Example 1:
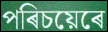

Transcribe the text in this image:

পৰিচয়েৰে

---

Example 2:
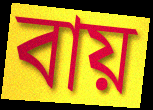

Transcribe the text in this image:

বায়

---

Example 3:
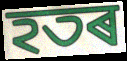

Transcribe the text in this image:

হতৰ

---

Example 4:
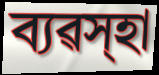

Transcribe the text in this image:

ব্যৱস্হা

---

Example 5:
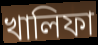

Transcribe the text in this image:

খালিফা